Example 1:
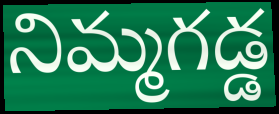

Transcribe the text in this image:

నిమ్మగడ్డ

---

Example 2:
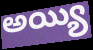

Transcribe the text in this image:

అయ్యి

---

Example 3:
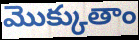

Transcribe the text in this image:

మొక్కుతాం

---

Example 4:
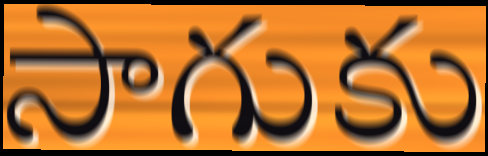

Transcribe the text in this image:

సాగుకు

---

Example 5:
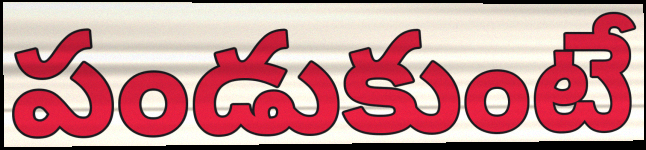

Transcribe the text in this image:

పండుకుంటే